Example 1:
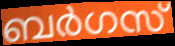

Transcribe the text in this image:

ബർഗസ്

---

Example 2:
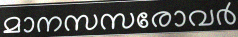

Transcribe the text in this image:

മാനസസരോവർ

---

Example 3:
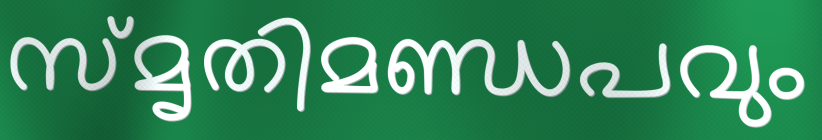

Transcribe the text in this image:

സ്മൃതിമണ്ഡപവും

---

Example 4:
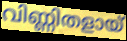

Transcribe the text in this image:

വിണ്ണിതളായ്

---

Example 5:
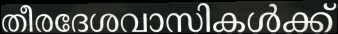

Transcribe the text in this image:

തീരദേശവാസികൾക്ക്